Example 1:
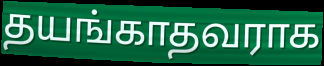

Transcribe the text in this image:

தயங்காதவராக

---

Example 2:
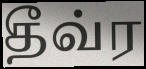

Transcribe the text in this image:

தீவ்ர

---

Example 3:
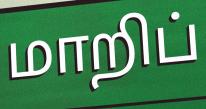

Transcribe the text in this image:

மாறிப்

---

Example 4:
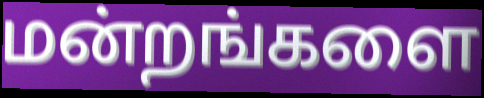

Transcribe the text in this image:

மன்றங்களை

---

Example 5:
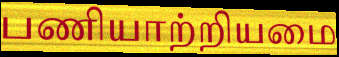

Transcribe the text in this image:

பணியாற்றியமை